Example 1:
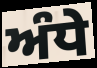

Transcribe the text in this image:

ਅੰਧੇ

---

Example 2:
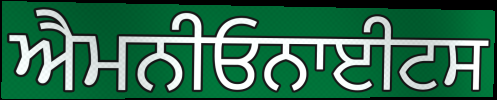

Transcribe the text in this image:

ਐਮਨੀਓਨਾਈਟਸ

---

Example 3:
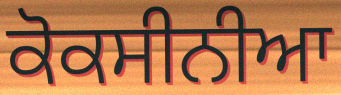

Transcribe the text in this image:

ਕੋਕਸੀਨੀਆ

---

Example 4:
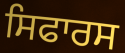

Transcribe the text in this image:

ਸਿਫਾਰਸ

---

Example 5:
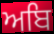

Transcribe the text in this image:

ਅਬਿ